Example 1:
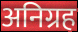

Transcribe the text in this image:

अनिग्रह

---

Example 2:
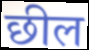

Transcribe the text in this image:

छील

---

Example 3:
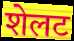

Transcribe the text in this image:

शेलट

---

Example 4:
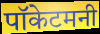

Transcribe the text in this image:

पॉकेटमनी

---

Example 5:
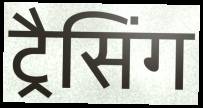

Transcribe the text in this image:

ट्रैसिंग